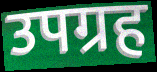
उपग्रह